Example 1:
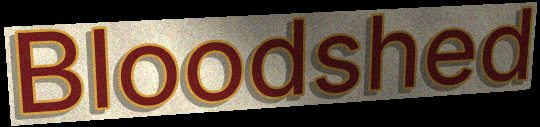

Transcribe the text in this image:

Bloodshed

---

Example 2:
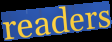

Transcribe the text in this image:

readers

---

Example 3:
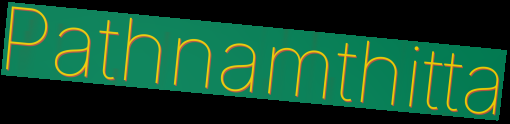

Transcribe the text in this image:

Pathnamthitta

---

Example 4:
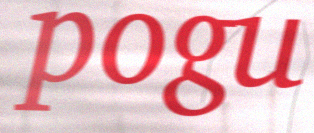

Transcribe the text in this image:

pogu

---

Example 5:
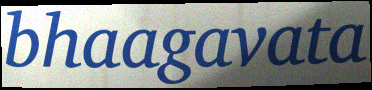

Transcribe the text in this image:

bhaagavata